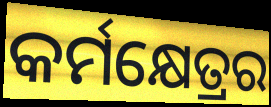
କର୍ମକ୍ଷେତ୍ରର